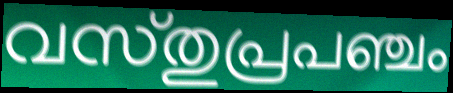
വസ്തുപ്രപഞ്ചം